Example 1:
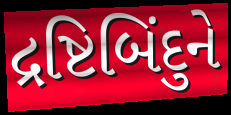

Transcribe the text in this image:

દ્રષ્ટિબિંદુને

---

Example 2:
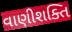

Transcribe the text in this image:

વાણીશક્તિ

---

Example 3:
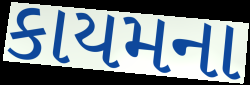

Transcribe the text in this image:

કાયમના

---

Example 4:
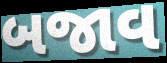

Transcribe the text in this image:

બજાવ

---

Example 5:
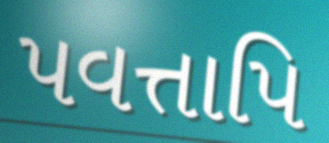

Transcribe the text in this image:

પવત્તાપિ